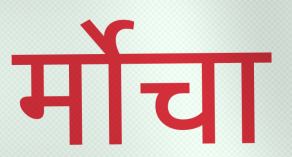
र्मोचा